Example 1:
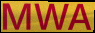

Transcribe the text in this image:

MWA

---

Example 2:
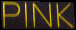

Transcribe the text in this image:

PINK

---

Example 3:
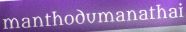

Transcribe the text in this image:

manthodumanathai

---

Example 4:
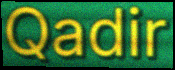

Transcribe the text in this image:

Qadir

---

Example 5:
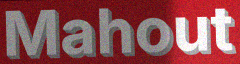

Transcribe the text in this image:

Mahout